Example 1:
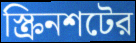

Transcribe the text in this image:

স্ক্রিনশটের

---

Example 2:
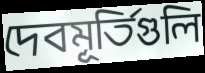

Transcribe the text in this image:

দেবমূর্তিগুলি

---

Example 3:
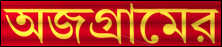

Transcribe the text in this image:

অজগ্রামের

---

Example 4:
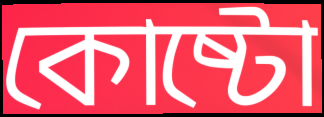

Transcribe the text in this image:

কোষ্টো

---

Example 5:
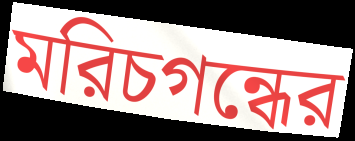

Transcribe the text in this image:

মরিচগন্ধের